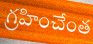
గ్రహించేంత